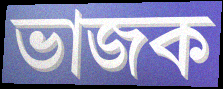
ভাজক